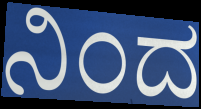
ನಿಂದ